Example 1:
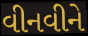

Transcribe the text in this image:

વીનવીને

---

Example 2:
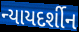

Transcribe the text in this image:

ન્યાયદર્શીન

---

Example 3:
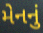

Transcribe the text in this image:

મેનનું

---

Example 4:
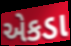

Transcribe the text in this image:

એકડા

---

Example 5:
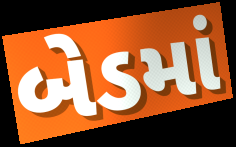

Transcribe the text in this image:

બેડમાં